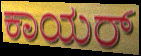
ಕಾಯರ್